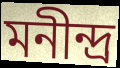
মনীন্দ্র